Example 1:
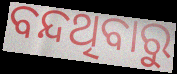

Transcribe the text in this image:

ବନ୍ଦଥିବାରୁ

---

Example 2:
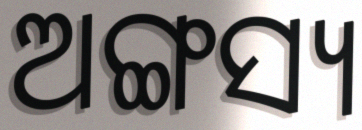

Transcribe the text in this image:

ଅଙ୍ଗସ୍ୟ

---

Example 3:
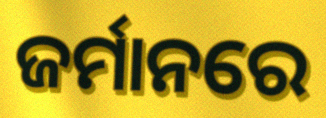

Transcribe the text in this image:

ଜର୍ମାନରେ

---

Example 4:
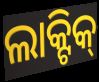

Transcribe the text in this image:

ଲାକ୍ଟିକ୍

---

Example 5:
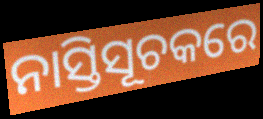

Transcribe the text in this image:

ନାସ୍ତିସୂଚକରେ